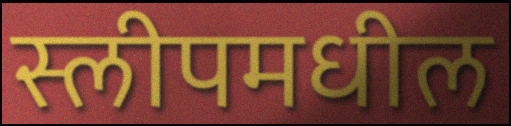
स्लीपमधील